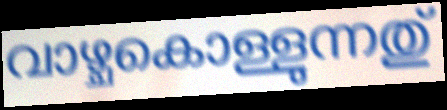
വാഴ്ചകൊള്ളുന്നതു്